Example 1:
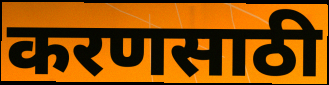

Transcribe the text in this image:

करणसाठी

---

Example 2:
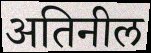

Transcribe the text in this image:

अतिनील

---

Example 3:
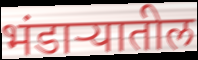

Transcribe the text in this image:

भंडाऱ्यातील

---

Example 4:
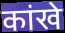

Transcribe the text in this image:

कांखे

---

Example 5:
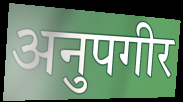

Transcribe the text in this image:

अनुपगीर